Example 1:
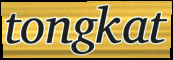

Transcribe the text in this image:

tongkat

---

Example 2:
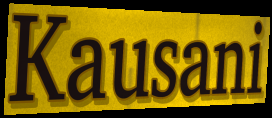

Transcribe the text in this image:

Kausani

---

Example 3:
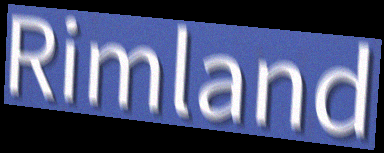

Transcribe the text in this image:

Rimland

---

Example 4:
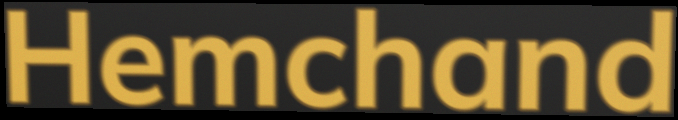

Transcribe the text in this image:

Hemchand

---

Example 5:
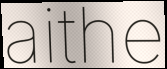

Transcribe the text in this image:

aithe